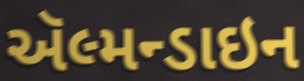
ઍલ્મન્ડાઇન